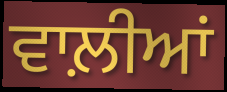
ਵਾਲ਼ੀਆਂ